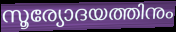
സൂര്യോദയത്തിനും